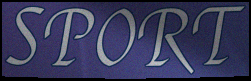
SPORT